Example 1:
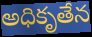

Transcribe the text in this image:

అధికృతేన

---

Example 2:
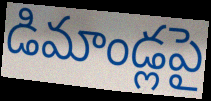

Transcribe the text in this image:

డిమాండ్లపై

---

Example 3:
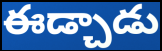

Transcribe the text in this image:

ఈడ్చాడు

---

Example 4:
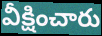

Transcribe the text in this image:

వీక్షించారు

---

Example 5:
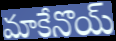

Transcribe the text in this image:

మాకేనొయ్